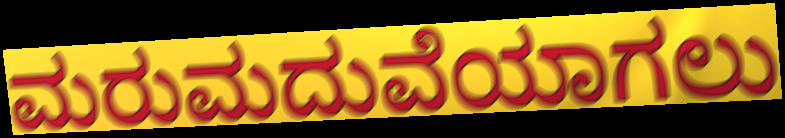
ಮರುಮದುವೆಯಾಗಲು